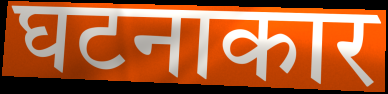
घटनाकार